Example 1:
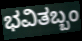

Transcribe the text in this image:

ಭವಿತಬ್ಬಂ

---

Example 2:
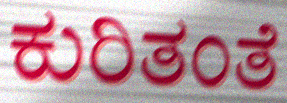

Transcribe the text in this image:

ಕುರಿತಂತೆ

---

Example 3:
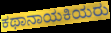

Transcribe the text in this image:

ಕಥಾನಾಯಕಿಯರು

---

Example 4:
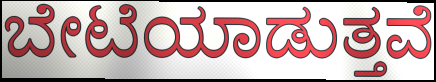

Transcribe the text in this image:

ಬೇಟೆಯಾಡುತ್ತವೆ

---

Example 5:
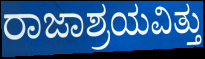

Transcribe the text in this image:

ರಾಜಾಶ್ರಯವಿತ್ತು